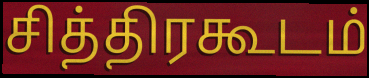
சித்திரகூடம்